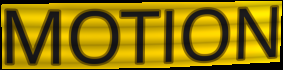
MOTION